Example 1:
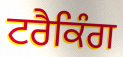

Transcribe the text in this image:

ਟਰੈਕਿੰਗ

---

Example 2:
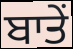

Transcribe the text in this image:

ਬਾਤੇਂ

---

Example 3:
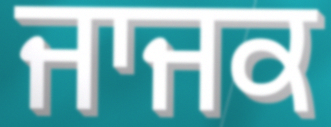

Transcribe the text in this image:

ਜਾਜਕ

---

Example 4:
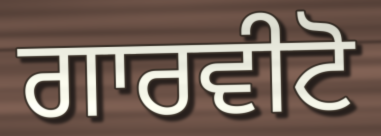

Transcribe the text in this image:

ਗਾਰਵੀਟੋ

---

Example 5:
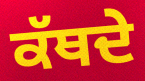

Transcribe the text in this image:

ਕੱਥਦੇ